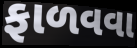
ફાળવવા